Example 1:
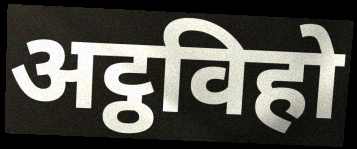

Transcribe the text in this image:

अट्ठविहो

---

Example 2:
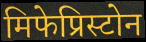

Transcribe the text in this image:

मिफेप्रिस्टोन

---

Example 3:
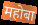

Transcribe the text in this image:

महोबा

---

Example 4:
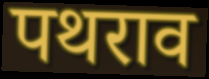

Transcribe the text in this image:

पथराव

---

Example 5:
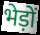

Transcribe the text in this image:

भेड़ों